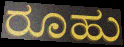
ರೂಹು